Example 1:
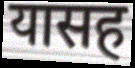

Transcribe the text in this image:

यासह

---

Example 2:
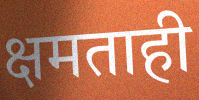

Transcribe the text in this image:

क्षमताही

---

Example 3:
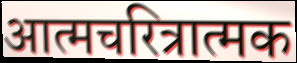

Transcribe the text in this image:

आत्मचरित्रात्मक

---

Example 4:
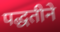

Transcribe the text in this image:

पद्धतीने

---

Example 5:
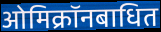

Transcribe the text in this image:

ओमिक्रॉनबाधित